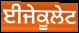
ਈਜੇਕੂਲੇਟ